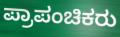
ಪ್ರಾಪಂಚಿಕರು